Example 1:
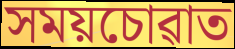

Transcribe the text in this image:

সময়চোৱাত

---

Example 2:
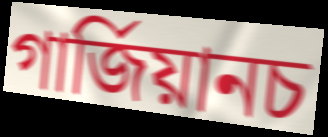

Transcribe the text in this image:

গাৰ্জিয়ানচ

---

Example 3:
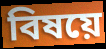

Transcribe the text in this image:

বিষয়ে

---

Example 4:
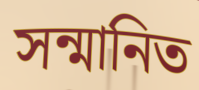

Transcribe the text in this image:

সন্মানিত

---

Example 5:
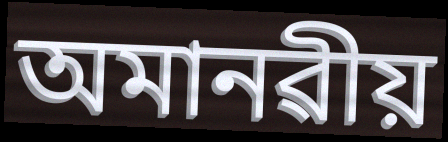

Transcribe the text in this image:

অমানৱীয়